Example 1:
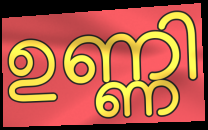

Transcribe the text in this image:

ഉണ്ണി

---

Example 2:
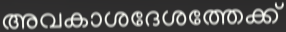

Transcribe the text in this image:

അവകാശദേശത്തേക്ക്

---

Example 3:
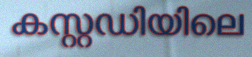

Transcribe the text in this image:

കസ്റ്റഡിയിലെ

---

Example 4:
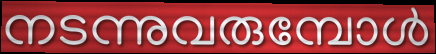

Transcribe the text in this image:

നടന്നുവരുമ്പോൾ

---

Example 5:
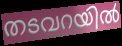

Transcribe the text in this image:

തടവറയിൽ